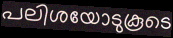
പലിശയോടുകൂടെ